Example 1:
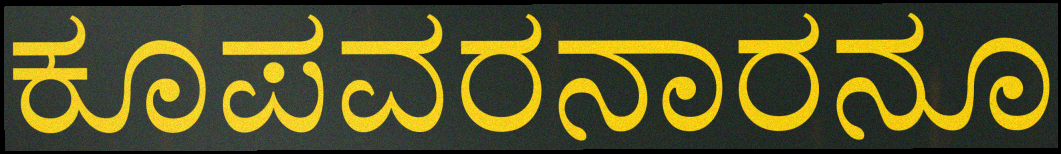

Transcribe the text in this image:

ಕೂಪವರನಾರನೂ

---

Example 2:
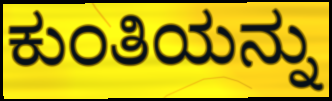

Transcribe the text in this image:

ಕುಂತಿಯನ್ನು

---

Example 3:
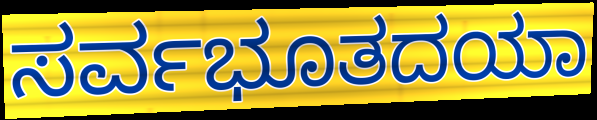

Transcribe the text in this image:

ಸರ್ವಭೂತದಯಾ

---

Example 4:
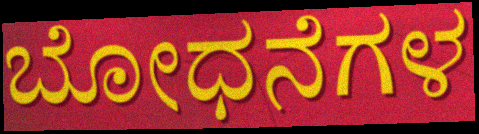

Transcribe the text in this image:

ಬೋಧನೆಗಳ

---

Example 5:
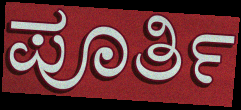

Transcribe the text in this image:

ಪೂರ್ತಿ